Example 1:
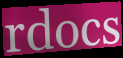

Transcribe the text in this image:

rdocs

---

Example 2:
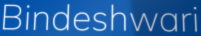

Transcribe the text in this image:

Bindeshwari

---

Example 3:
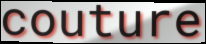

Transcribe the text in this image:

couture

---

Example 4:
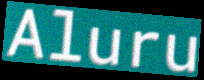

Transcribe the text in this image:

Aluru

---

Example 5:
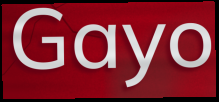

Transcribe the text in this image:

Gayo